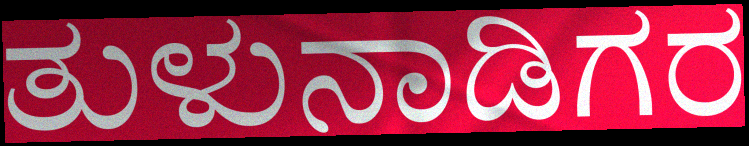
ತುಳುನಾಡಿಗರ